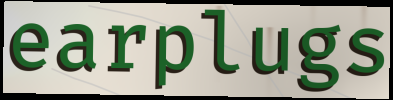
earplugs